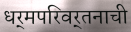
धर्मपरिवर्तनाची